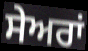
ਸੇਅਰਾਂ